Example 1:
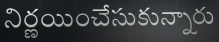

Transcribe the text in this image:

నిర్ణయించేసుకున్నారు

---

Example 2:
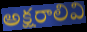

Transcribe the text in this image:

అక్షరాలివి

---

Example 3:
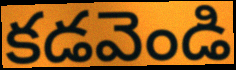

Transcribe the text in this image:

కడవెండి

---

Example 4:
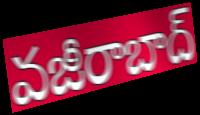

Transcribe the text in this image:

వజీరాబాద్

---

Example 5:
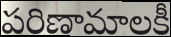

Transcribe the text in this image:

పరిణామాలకీ